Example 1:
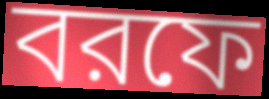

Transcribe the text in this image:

বরফে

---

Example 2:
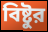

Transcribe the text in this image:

বিষ্টুর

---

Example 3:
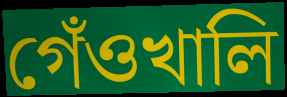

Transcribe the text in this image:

গেঁওখালি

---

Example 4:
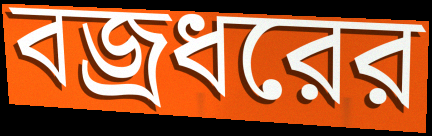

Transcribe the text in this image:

বজ্রধরের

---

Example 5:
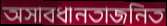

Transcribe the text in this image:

অসাবধানতাজনিত